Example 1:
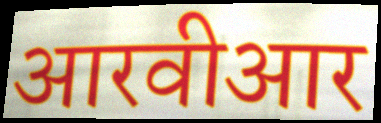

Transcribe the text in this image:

आरवीआर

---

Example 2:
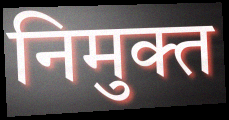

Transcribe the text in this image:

निमुक्त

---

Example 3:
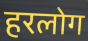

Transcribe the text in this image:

हरलोग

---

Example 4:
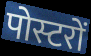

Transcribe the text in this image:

पोस्‍टरों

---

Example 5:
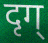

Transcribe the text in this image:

दृग्